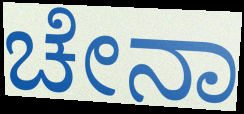
ಚೇನಾ